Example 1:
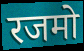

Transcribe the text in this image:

रजमो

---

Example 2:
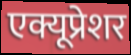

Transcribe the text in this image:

एक्यूप्रेशर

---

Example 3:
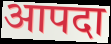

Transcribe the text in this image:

आपदा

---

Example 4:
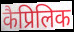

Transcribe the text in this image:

कैप्रिलिक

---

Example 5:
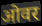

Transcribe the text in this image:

ओवर